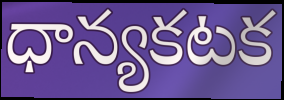
ధాన్యకటక